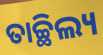
ତାଚ୍ଛିଲ୍ୟ